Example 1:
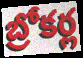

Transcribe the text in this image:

బ్రోకర్ల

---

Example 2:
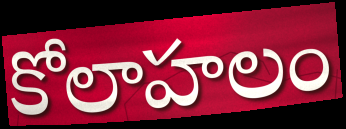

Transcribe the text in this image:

కోలాహలం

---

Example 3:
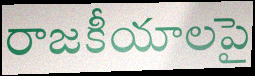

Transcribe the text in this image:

రాజకీయాలపై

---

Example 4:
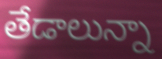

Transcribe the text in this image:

తేడాలున్నా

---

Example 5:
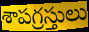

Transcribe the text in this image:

శాపగ్రస్తులు